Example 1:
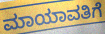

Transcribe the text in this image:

ಮಾಯಾವತಿಗೆ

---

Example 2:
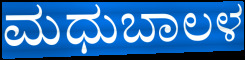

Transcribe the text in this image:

ಮಧುಬಾಲಳ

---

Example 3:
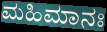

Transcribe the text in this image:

ಮಹಿಮಾನಃ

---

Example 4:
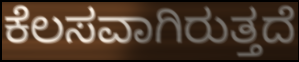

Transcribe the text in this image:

ಕೆಲಸವಾಗಿರುತ್ತದೆ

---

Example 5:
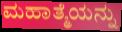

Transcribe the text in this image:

ಮಹಾತ್ಮೆಯನ್ನು